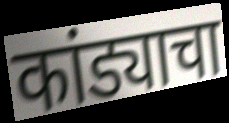
कांड्याचा